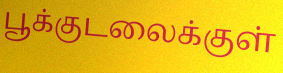
பூக்குடலைக்குள்